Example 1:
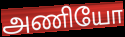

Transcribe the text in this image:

அணியோ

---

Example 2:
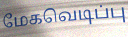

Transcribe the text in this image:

மேகவெடிப்பு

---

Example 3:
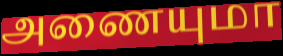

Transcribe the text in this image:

அணையுமா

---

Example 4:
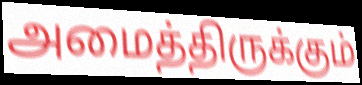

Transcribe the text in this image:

அமைத்திருக்கும்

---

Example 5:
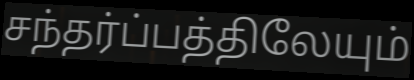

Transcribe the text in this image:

சந்தர்ப்பத்திலேயும்